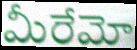
మీరేమో